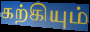
கற்கியும்